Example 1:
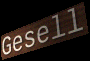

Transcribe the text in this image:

Gesell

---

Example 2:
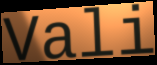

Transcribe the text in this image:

Vali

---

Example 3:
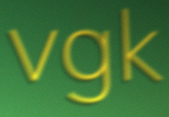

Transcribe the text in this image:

vgk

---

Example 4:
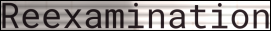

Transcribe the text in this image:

Reexamination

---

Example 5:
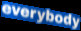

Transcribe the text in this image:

everybody